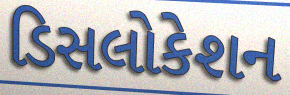
ડિસલોકેશન